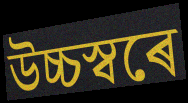
উচ্চস্বৰে